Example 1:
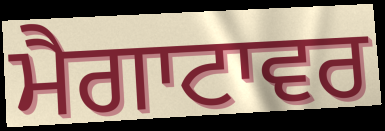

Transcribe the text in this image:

ਮੈਗਾਟਾਵਰ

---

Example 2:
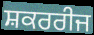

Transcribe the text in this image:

ਸ਼ਕਰਰੀਜ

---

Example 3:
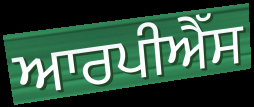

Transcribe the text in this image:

ਆਰਪੀਐੱਸ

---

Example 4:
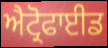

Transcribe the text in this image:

ਐਟ੍ਰੋਫਾਈਡ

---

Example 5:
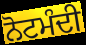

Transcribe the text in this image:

ਨੋਟਮੰਦੀ